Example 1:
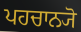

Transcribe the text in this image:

ਪਹਚਾਨ੍ਯੋ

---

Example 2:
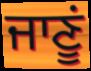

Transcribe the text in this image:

ਜਾਣੂਂ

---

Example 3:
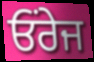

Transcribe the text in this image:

ਓਂਰੇਜ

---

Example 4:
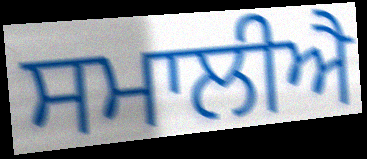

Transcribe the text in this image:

ਸਮਾਲੀਐ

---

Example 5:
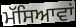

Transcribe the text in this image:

ਮੱਸਿਆਵਾਂ